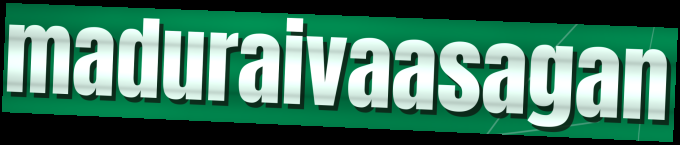
maduraivaasagan